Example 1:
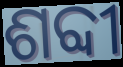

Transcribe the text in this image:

ଶବ୍ଦୀ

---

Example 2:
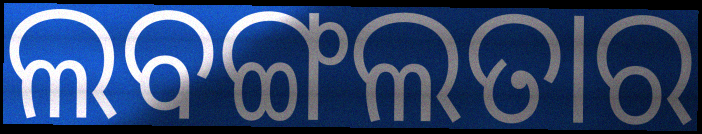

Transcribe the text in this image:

ଲବଙ୍ଗଲତାର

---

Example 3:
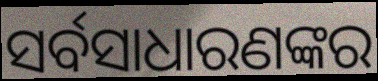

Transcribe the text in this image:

ସର୍ବସାଧାରଣଙ୍କର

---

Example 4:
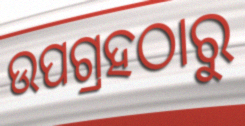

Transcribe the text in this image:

ଉପଗ୍ରହଠାରୁ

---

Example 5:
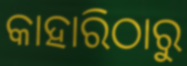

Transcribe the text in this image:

କାହାରିଠାରୁ